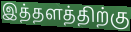
இத்தளத்திற்கு